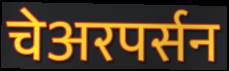
चेअरपर्सन